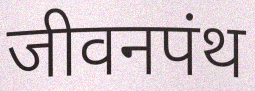
जीवनपंथ